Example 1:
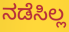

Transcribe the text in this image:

ನಡೆಸಿಲ್ಲ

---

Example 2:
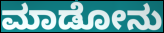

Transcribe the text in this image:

ಮಾಡೋನು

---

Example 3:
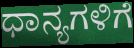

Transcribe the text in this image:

ಧಾನ್ಯಗಳಿಗೆ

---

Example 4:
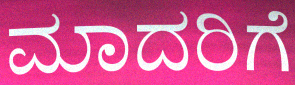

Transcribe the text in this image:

ಮಾದರಿಗೆ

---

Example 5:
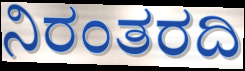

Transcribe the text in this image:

ನಿರಂತರದಿ